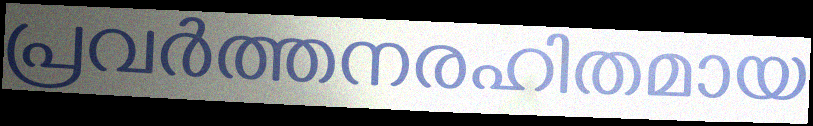
പ്രവർത്തനരഹിതമായ